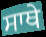
ਸਾਥੇ